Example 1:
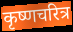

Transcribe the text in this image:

कृष्णचरित्र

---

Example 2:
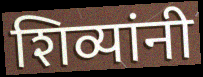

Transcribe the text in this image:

शिव्यांनी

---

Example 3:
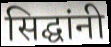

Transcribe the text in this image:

सिद्घांनी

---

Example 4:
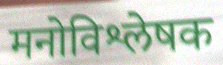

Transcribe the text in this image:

मनोविश्लेषक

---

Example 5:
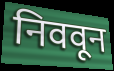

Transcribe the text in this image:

निववून